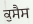
ਕੁਸੈਸ